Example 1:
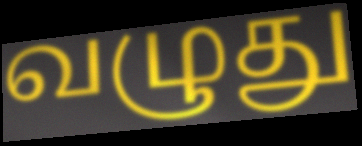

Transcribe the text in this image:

வழுது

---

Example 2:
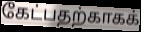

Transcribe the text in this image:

கேட்பதற்காகக்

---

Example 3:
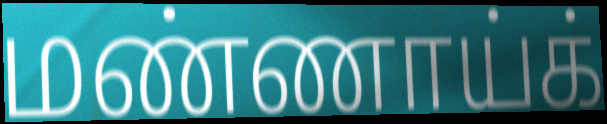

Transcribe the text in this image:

மண்ணாய்க்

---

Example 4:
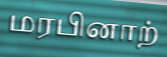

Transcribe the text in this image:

மரபினாற்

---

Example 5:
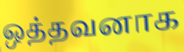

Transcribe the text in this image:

ஒத்தவனாக